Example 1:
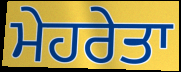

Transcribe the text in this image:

ਮੇਹਰੇਤਾ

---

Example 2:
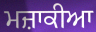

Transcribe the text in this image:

ਮਜ਼ਾਕੀਆ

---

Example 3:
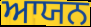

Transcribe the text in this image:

ਆਯਨ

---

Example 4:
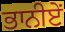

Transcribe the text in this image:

ਭਾਨੀਏਂ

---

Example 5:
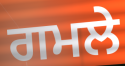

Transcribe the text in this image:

ਗਮਲੇ